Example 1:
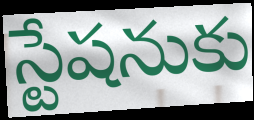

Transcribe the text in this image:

స్టేషనుకు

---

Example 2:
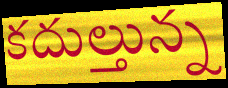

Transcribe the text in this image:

కదుల్తున్న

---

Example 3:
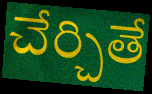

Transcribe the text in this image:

చేర్చితే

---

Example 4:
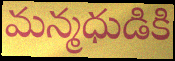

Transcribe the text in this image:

మన్మధుడికి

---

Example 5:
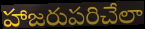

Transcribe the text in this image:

హాజరుపరిచేలా